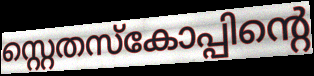
സ്റ്റെതസ്കോപ്പിന്റെ